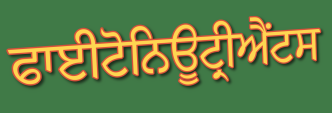
ਫਾਈਟੋਨਿਊਟ੍ਰੀਐਂਟਸ